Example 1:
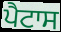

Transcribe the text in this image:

ਪੈਟਾਸ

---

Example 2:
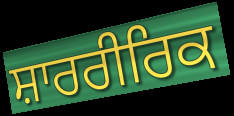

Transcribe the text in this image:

ਸ਼ਾਰਰੀਰਿਕ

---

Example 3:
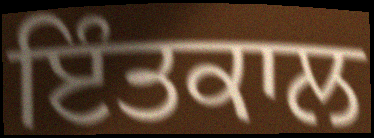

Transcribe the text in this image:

ਇੰਤਕਾਲ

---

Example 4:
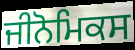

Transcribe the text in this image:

ਜੀਨੋਮਿਕਸ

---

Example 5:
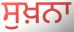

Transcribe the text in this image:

ਸੁਖ਼ਨਾ